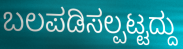
ಬಲಪಡಿಸಲ್ಪಟ್ಟದ್ದು